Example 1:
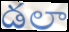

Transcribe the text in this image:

డలా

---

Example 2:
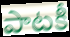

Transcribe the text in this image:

పాటకీ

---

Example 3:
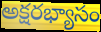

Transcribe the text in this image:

అక్షరభ్యాసం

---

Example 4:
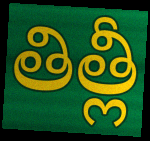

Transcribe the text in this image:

తిత్లీ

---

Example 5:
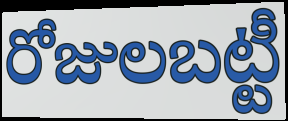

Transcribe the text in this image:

రోజులబట్టీ